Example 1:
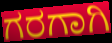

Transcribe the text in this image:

ಗರಗಾಗಿ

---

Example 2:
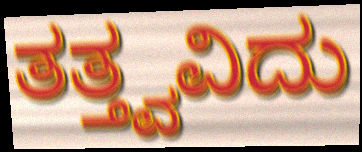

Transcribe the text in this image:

ತತ್ತ್ವವಿದು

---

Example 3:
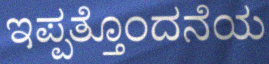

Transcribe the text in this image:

ಇಪ್ಪತ್ತೊಂದನೆಯ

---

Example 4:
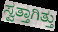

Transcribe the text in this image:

ಸ್ವತ್ತಾಗಿತ್ತು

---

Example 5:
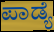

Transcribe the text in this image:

ಪಾಡ್ಯೆ